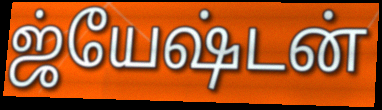
ஜ்யேஷ்டன்